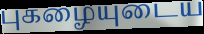
புகழையுடைய